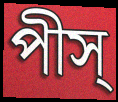
পীস্